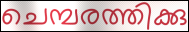
ചെമ്പരത്തിക്കു